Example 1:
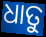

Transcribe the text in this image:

ଧାତୁ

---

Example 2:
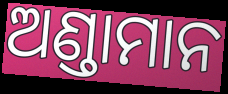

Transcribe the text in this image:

ଅଣ୍ଡାମାନ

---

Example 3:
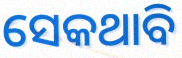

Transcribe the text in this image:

ସେକଥାବି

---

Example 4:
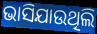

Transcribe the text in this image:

ଭାସିଯାଉଥିଲି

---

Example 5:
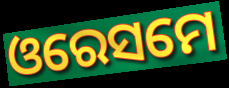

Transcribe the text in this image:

ଓରେସମେ